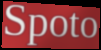
Spoto